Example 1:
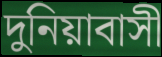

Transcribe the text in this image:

দুনিয়াবাসী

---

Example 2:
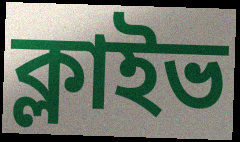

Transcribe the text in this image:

ক্লাইভ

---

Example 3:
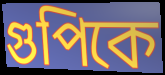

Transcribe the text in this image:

গুপিকে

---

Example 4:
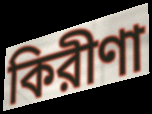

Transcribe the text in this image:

কিরীণা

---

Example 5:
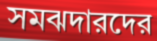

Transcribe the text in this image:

সমঝদারদের